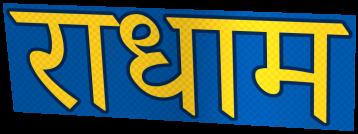
राधाम